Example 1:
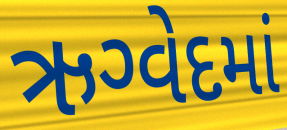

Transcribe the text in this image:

ઋગ્વેદમાં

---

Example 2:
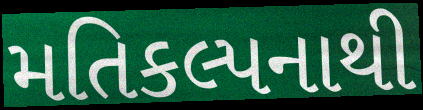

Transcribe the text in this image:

મતિકલ્પનાથી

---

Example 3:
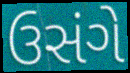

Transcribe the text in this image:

ઉસંગે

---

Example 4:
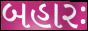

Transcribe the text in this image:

બહારઃ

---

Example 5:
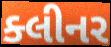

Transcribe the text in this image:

ક્લીનર